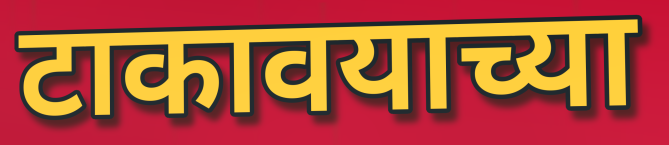
टाकावयाच्या